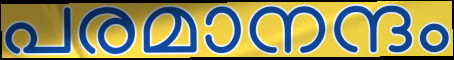
പരമാനന്ദം